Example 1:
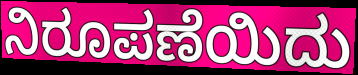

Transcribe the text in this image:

ನಿರೂಪಣೆಯಿದು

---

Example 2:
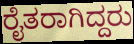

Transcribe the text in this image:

ರೈತರಾಗಿದ್ದರು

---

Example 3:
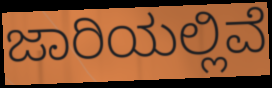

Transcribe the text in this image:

ಜಾರಿಯಲ್ಲಿವೆ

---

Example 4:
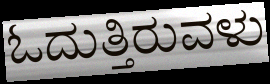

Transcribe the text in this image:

ಓದುತ್ತಿರುವಳು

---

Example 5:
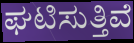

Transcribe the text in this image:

ಘಟಿಸುತ್ತಿವೆ